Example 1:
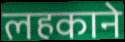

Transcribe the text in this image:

लहकाने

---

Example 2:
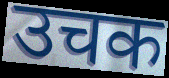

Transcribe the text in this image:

उचक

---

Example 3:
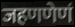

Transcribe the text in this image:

जहणणेणं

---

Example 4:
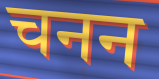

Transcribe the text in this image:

चनन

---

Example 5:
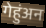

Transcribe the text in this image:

गेहुंअन